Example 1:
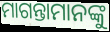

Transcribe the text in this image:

ମାଗନ୍ତାମାନଙ୍କୁ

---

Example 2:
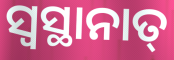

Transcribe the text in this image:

ସ୍ଵସ୍ଥାନାତ୍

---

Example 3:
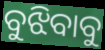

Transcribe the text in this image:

ବୁଝିବାବୁ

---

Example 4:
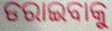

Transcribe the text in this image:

ଡରାଇବାକୁ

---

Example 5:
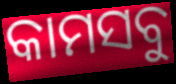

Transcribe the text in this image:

କାମସବୁ